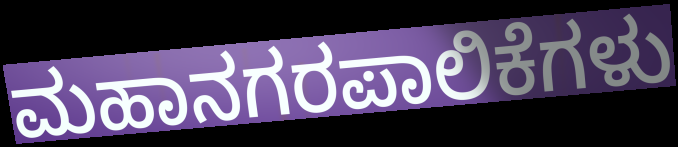
ಮಹಾನಗರಪಾಲಿಕೆಗಳು